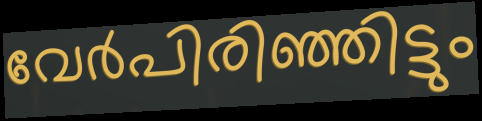
വേർപിരിഞ്ഞിട്ടും